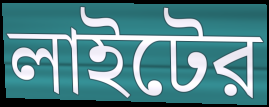
লাইটের